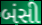
બંસી